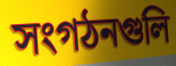
সংগঠনগুলি